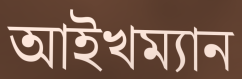
আইখম্যান